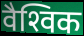
वैश्विक